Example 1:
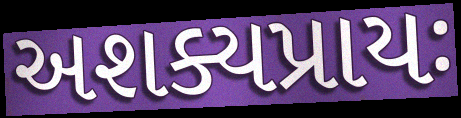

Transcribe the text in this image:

અશક્યપ્રાયઃ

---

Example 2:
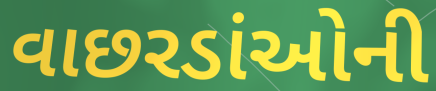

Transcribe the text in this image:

વાછરડાંઓની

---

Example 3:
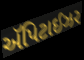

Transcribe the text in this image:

ઍપિટાઈઝર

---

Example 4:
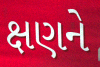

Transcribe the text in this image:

ક્ષણને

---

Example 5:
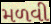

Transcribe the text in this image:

મળવી